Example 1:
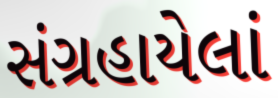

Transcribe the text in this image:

સંગ્રહાયેલાં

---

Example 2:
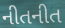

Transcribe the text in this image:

નીતનીત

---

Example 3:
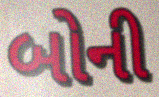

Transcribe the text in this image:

બોની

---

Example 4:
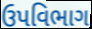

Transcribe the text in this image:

ઉપવિભાગ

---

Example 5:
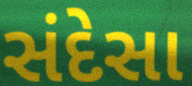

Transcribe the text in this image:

સંદેસા